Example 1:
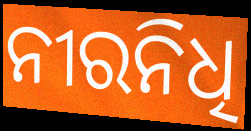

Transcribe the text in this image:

ନୀରନିଧି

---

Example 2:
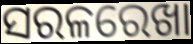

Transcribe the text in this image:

ସରଳରେଖା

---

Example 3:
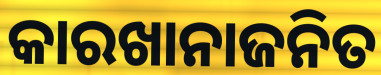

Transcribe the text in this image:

କାରଖାନାଜନିତ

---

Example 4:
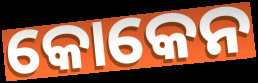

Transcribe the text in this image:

କୋକେନ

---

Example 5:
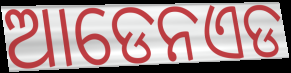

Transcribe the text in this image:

ଆଡେନଏଡ